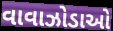
વાવાઝોડાઓ